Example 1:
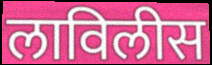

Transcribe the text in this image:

लाविलीस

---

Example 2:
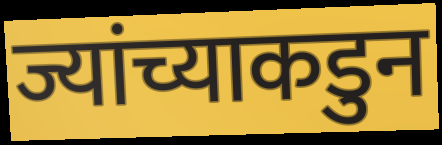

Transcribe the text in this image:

ज्यांच्याकडुन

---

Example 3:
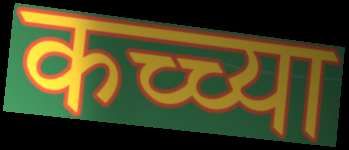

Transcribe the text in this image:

कच्च्या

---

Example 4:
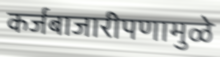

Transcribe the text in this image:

कर्जबाजारीपणामुळे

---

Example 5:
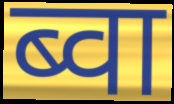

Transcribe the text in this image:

ब्वा